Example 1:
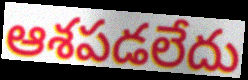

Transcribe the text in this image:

ఆశపడలేదు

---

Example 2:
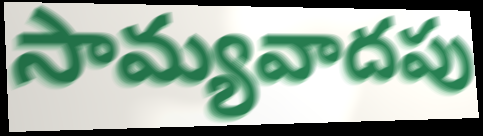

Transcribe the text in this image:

సామ్యవాదపు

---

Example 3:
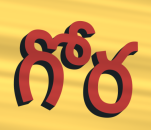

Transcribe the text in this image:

గోర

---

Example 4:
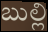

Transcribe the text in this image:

బుల్లి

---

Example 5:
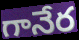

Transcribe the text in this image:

గానేర